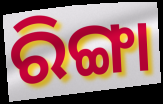
ରିଙ୍ଗା